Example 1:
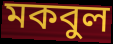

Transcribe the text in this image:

মকবুল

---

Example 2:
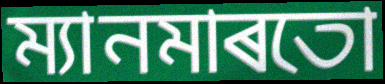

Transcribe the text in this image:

ম্যানমাৰতো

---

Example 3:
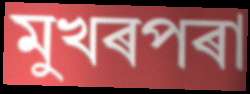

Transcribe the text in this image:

মুখৰপৰা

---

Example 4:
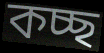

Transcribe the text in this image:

কচ্ছ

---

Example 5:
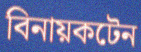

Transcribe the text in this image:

বিনায়কটেন